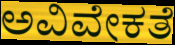
ಅವಿವೇಕತೆ